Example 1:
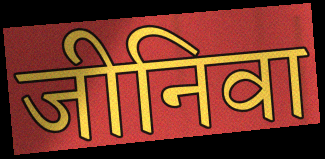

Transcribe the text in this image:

जीनिवा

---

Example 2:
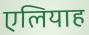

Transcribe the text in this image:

एलियाह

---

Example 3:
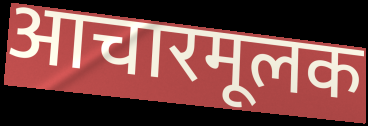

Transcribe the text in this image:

आचारमूलक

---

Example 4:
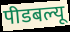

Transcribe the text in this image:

पीडबल्यू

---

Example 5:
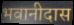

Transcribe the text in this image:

भवानीदास